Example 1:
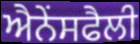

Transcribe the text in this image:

ਐਨੇਂਸਫੈਲੀ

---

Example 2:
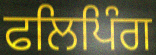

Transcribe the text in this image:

ਫਲਿਪਿੰਗ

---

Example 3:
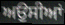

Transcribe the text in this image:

ਅਉਸੀਆਂ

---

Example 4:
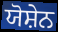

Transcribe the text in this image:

ਯੋਸ਼ੇਨ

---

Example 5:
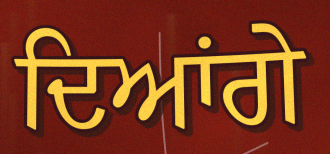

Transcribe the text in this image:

ਦਿਆਂਗੇ